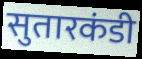
सुतारकंडी